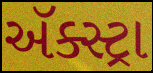
ઍક્સ્ટ્રા